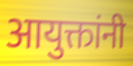
आयुक्तांनी